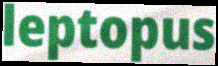
leptopus